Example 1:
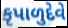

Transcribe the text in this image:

કૃપાળુદેવે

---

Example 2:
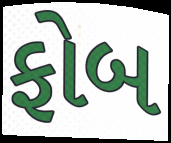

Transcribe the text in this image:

ફોબ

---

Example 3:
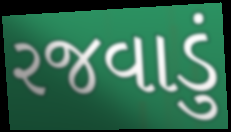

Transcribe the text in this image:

રજવાડું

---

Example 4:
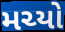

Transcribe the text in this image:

મચ્યો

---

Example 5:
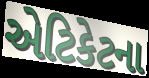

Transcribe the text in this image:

એટિકેટના